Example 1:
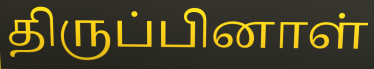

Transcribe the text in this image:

திருப்பினாள்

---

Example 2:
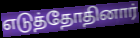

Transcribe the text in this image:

எடுத்தோதினார்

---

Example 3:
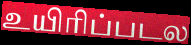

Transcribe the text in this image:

உயிரிப்படல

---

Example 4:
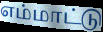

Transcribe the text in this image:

எம்மாட்டு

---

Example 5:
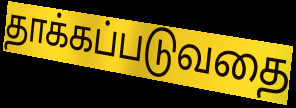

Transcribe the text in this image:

தாக்கப்படுவதை